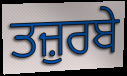
ਤਜ਼ੁਰਬੇ